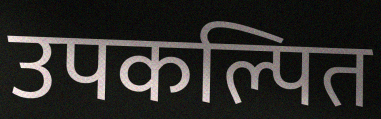
उपकल्पित